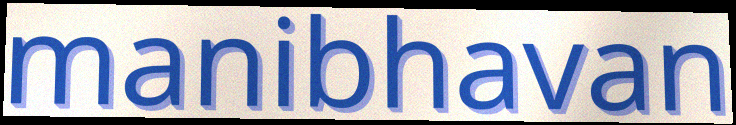
manibhavan